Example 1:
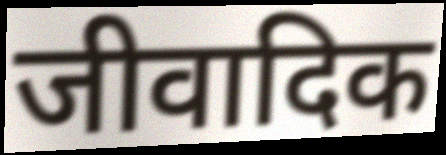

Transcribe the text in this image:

जीवादिक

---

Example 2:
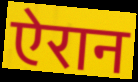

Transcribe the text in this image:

ऐरान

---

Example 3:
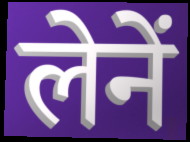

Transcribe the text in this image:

लेनें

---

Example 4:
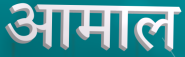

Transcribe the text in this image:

आमाल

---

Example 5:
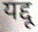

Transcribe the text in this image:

यद्दू